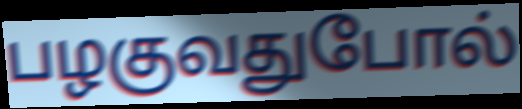
பழகுவதுபோல்